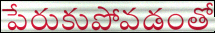
పేరుకుపోవడంతో